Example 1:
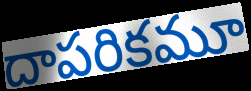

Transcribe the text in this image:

దాపరికమూ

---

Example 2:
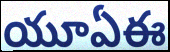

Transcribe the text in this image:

యూఏఈ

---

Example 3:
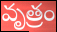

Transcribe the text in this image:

వృత్రం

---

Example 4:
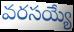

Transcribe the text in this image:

వరసయ్యే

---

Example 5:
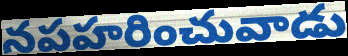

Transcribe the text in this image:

నపహరించువాడు